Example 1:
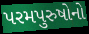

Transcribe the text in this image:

પરમપુરુષોનો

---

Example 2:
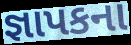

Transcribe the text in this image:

જ્ઞાપકના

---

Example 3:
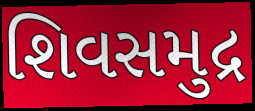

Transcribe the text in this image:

શિવસમુદ્ર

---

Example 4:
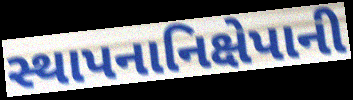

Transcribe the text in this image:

સ્થાપનાનિક્ષેપાની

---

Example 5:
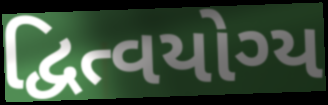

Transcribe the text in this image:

દ્વિત્વયોગ્ય